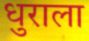
धुराला